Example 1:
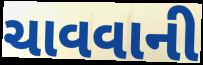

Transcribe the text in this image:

ચાવવાની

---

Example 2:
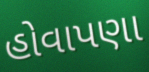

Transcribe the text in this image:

હોવાપણા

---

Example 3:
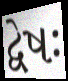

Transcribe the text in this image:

દ્વેષઃ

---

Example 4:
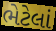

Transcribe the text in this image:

ભેટેલાં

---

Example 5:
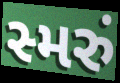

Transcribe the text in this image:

સ્મરું